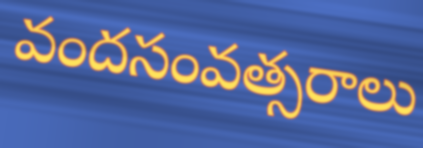
వందసంవత్సరాలు